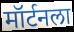
मॉर्टनला